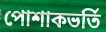
পোশাকভর্তি